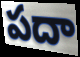
పదా